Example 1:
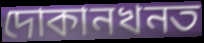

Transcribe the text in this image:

দোকানখনত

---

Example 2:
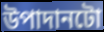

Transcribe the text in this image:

উপাদানটো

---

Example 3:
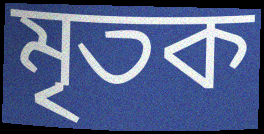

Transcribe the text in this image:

মৃতক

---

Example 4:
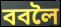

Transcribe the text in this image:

ববলৈ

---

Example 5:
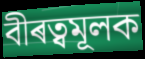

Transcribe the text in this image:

বীৰত্বমূলক